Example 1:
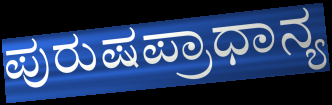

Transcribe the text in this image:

ಪುರುಷಪ್ರಾಧಾನ್ಯ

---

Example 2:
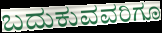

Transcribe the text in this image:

ಬದುಕುವವರಿಗೂ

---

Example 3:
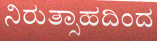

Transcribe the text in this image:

ನಿರುತ್ಸಾಹದಿಂದ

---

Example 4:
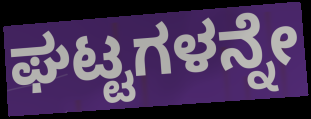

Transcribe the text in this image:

ಘಟ್ಟಗಳನ್ನೇ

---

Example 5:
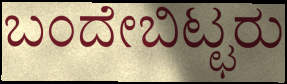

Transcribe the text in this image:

ಬಂದೇಬಿಟ್ಟರು